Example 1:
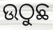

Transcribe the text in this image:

ଉଠୁଛ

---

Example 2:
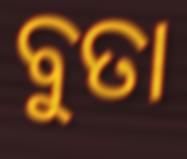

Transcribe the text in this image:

ବୁତା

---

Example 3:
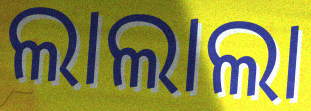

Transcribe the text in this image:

ଲାଲାଲା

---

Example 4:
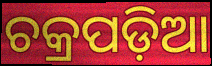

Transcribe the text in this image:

ଚକ୍ରପଡ଼ିଆ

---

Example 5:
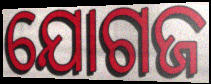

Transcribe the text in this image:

ଯୋଗଜ